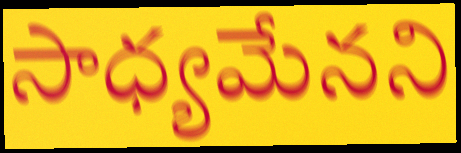
సాధ్యమేనని